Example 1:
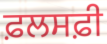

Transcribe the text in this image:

ਫ਼ਲਸਫ਼ੀ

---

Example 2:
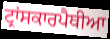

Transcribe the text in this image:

ਟ੍ਰਾਂਸਕਾਰਪੈਥੀਆ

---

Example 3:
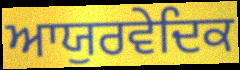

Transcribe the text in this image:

ਆਯੁਰਵੇਦਿਕ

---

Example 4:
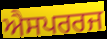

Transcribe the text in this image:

ਐਸਪਰਰਜ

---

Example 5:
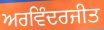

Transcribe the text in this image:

ਅਰਵਿੰਦਰਜੀਤ